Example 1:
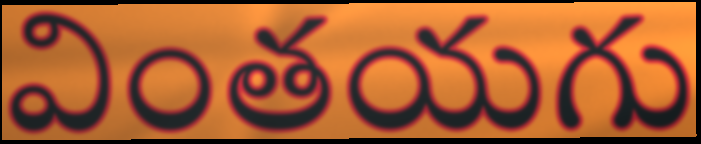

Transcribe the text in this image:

వింతయగు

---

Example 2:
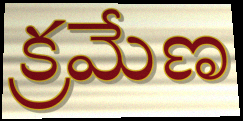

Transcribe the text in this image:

క్రమేణ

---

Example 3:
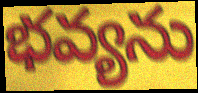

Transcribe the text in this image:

భవ్యను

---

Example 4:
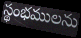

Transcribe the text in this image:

స్థంభములను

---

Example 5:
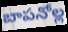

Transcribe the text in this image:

బాపనోల్ల